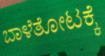
ಬಾಳೆತೋಟಕ್ಕೆ